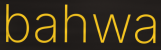
bahwa